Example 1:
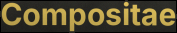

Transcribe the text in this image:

Compositae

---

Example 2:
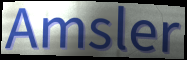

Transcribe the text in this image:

Amsler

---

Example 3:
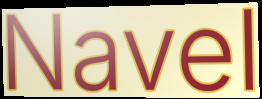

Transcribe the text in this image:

Navel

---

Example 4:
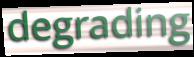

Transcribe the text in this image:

degrading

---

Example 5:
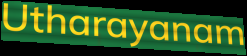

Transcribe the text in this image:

Utharayanam